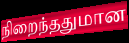
நிறைந்ததுமான